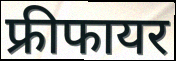
फ्रीफायर